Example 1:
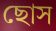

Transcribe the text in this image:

ছোস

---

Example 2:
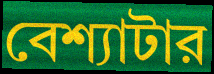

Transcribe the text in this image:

বেশ্যাটার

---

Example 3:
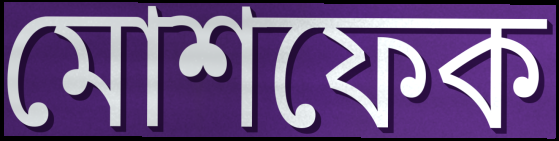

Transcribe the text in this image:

মোশফেক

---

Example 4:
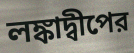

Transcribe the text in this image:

লঙ্কাদ্বীপের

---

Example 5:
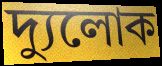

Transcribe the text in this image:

দ্যুলোক